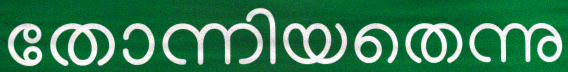
തോന്നിയതെന്നു